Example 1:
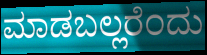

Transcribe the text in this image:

ಮಾಡಬಲ್ಲರೆಂದು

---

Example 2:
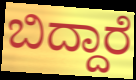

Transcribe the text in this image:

ಬಿದ್ದಾರೆ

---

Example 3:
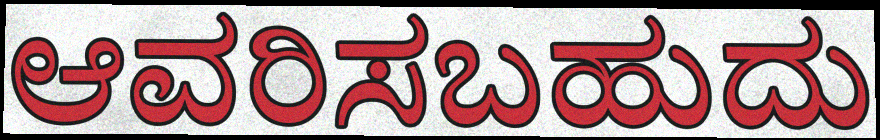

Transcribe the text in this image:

ಆವರಿಸಬಹುದು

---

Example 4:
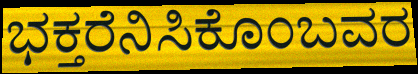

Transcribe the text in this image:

ಭಕ್ತರೆನಿಸಿಕೊಂಬವರ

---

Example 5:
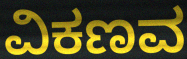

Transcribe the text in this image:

ವಿಕಣವ